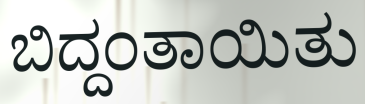
ಬಿದ್ದಂತಾಯಿತು